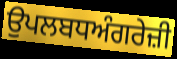
ਉਪਲਬਧਅੰਗਰੇਜ਼ੀ